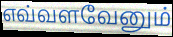
எவ்வளவேனும்